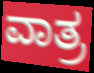
ವಾತ್ರ